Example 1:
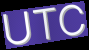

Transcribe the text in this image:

UTC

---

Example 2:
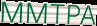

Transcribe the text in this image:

MMTPA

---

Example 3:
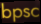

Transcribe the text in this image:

bpsc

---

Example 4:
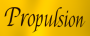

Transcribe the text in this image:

Propulsion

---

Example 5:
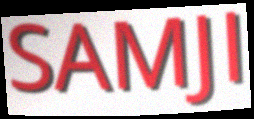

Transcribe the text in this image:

SAMJI